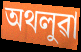
অথলুৱা